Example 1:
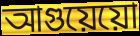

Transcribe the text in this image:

আগুয়েয়ো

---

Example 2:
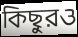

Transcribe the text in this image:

কিছুরও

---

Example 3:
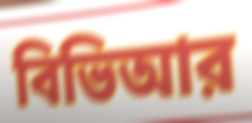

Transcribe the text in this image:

বিভিআর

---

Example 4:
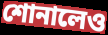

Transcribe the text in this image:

শোনালেও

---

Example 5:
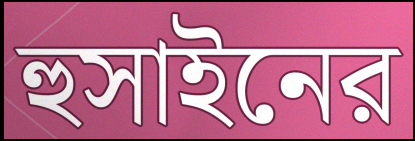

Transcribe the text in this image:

হুসাইনের